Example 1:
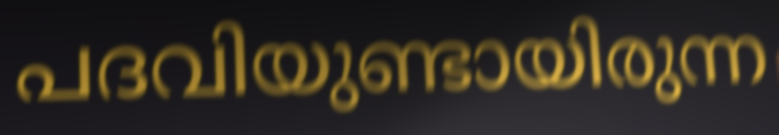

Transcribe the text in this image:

പദവിയുണ്ടായിരുന്ന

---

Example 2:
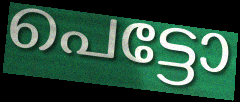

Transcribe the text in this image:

പെട്ടോ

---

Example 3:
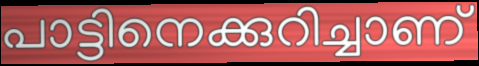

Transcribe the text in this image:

പാട്ടിനെക്കുറിച്ചാണ്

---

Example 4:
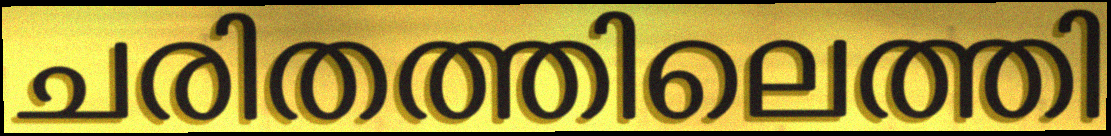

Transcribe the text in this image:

ചരിതത്തിലെത്തി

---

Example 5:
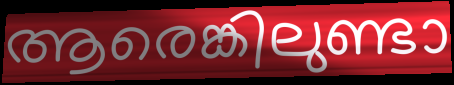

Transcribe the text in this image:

ആരെങ്കിലുണ്ടാ